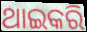
ଥାଇକରି